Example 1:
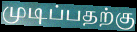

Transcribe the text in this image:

முடிப்பதற்கு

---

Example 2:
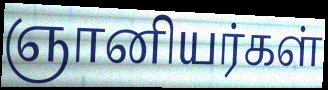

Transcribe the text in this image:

ஞானியர்கள்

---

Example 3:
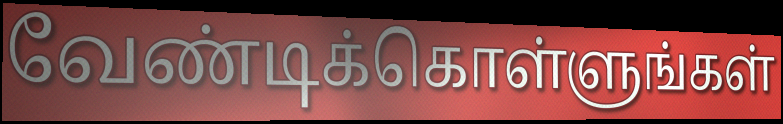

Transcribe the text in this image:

வேண்டிக்கொள்ளுங்கள்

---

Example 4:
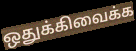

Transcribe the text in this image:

ஒதுக்கிவைக்க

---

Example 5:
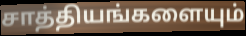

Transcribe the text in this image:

சாத்தியங்களையும்